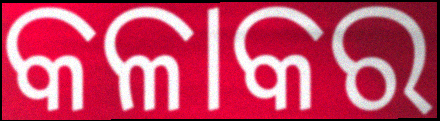
କଳାକର